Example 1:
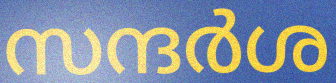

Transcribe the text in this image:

സന്ദർശ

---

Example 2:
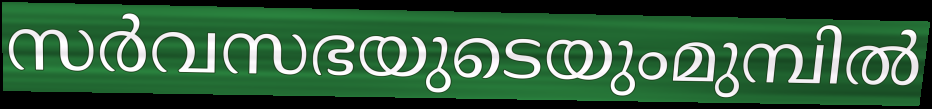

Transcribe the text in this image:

സർവസഭയുടെയുംമുമ്പിൽ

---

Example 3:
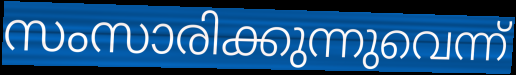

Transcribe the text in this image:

സംസാരിക്കുന്നുവെന്ന്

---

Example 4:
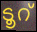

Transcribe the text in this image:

ടൂറ്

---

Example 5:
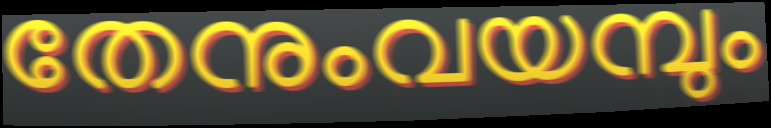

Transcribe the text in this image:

തേനുംവയമ്പും